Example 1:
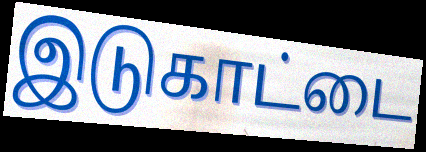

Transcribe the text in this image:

இடுகாட்டை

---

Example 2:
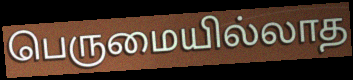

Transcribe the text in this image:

பெருமையில்லாத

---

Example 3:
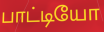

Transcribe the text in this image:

பாட்டியோ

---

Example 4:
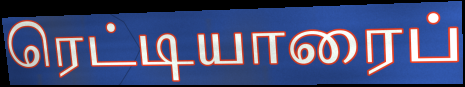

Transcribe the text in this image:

ரெட்டியாரைப்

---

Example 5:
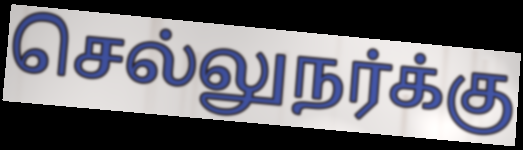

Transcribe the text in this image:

செல்லுநர்க்கு